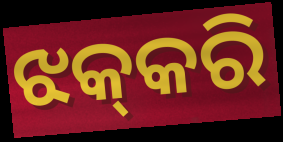
ଝକ୍‌କରି